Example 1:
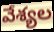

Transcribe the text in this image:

వేశ్యల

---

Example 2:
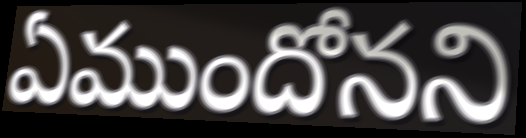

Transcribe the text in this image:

ఏముందోనని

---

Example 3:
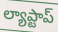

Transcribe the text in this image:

ల్యాప్టాప్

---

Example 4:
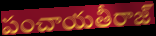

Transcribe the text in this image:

పంచాయతీరాజ్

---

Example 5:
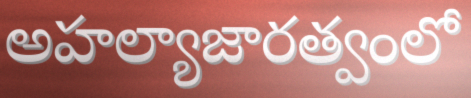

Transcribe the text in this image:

అహల్యాజారత్వంలో